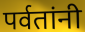
पर्वतांनी